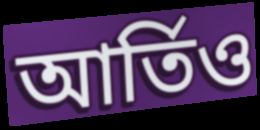
আর্তিও